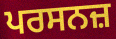
ਪਰਸਨਜ਼